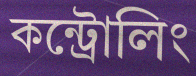
কন্ট্রোলিং